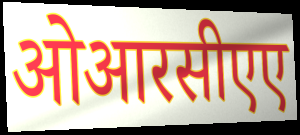
ओआरसीएए